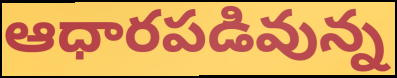
ఆధారపడివున్న